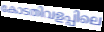
കോടതിവളപ്പിലെ